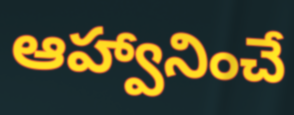
ఆహ్వానించే